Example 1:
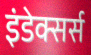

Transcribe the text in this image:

इंडेक्सर्स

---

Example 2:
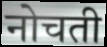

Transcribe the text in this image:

नोचती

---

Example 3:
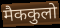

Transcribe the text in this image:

मैककुलो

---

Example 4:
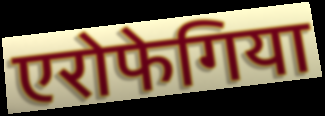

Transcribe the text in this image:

एरोफेगिया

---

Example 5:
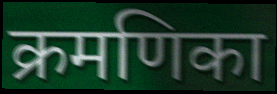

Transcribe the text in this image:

क्रमणिका